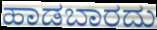
ಹಾಡಬಾರದು